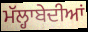
ਮੱਲ੍ਹਾਬੇਦੀਆਂ